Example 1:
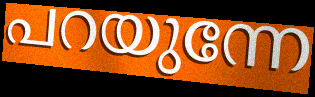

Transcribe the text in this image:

പറയുന്നേ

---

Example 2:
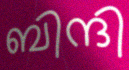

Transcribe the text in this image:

ബിന്ദി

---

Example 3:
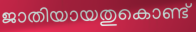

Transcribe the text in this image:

ജാതിയായതുകൊണ്ട്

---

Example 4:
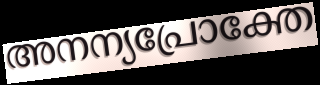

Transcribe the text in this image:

അനന്യപ്രോക്തേ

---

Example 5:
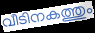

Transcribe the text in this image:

വീടിനകത്തും